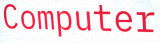
Computer